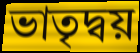
ভাতৃদ্বয়